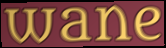
wane